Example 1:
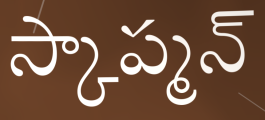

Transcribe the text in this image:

స్కాప్మన్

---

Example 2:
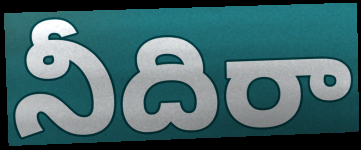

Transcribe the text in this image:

నీదిరా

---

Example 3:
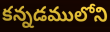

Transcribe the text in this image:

కన్నడములోని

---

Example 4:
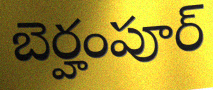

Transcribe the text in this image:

బెర్హంపూర్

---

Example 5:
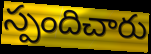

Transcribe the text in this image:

స్పందిచారు